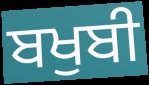
ਬਖੁਬੀ